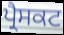
ਪ੍ਰੈਸਕਟ